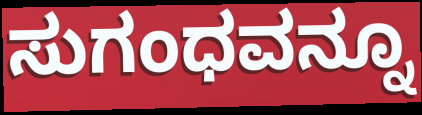
ಸುಗಂಧವನ್ನೂ